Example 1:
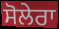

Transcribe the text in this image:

ਸੋਲੇਰਾ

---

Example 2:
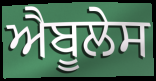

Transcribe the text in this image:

ਐਬੂਲੇਸ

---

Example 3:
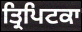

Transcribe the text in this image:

ਤ੍ਰਿਪਿਟਕਾ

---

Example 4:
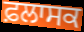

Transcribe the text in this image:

ਫ਼ਲਾਸਕ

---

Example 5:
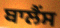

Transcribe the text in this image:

ਬਾਲੈਂਸ